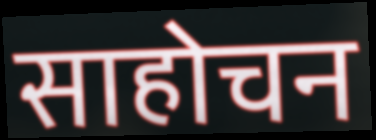
साहोचन